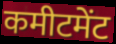
कमीटमेंट